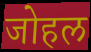
जोहल